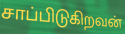
சாப்பிடுகிறவன்